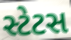
સ્ટેટસ